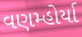
વણમ્હોર્યા